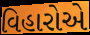
વિહારોએ